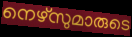
നെഴ്സുമാരുടെ